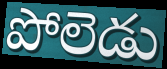
పోలెడు